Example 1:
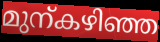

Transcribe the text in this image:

മുന്കഴിഞ്ഞ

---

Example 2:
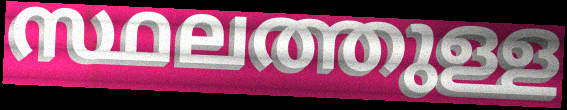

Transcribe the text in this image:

സ്ഥലത്തുള്ള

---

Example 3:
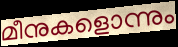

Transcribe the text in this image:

മീനുകളൊന്നും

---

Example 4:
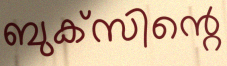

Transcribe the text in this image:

ബുക്‌സിന്റെ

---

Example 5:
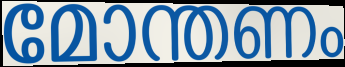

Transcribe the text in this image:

മോന്തണം